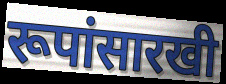
रूपांसारखी